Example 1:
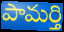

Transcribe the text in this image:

పామర్తి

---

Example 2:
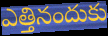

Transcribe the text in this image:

ఎత్తినందుకు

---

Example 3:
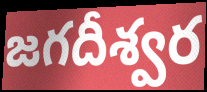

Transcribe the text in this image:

జగదీశ్వర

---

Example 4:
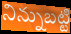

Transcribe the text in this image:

నిన్నుబట్టి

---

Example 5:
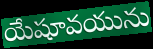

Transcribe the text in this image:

యేషూవయును